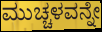
ಮುಚ್ಚಳವನ್ನೇ